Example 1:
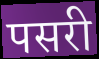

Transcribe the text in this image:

पसरी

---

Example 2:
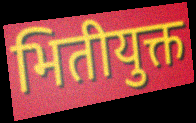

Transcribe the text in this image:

भितीयुक्त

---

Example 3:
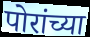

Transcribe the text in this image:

पोरांच्या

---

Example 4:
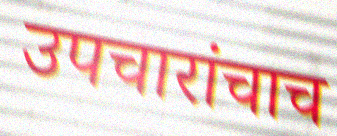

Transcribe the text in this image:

उपचारांचाच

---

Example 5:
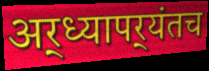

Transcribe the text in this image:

अर्ध्यापर्यंतच